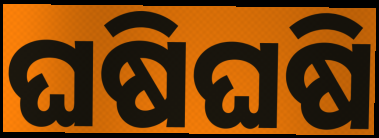
ଘଷିଘଷି